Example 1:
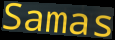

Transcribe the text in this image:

Samas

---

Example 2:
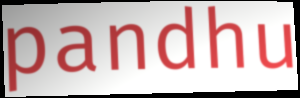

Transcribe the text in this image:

pandhu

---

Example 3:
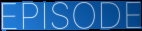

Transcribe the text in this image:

EPISODE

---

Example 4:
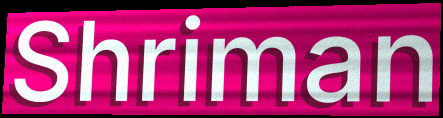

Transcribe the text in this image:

Shriman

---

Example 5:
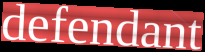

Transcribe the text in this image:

defendant